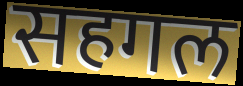
सहगल